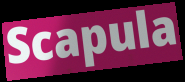
Scapula